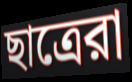
ছাত্রেরা